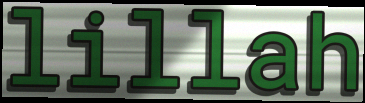
lillah